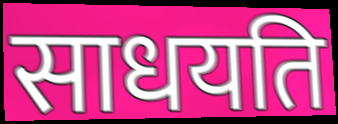
साधयति